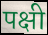
पक्षी